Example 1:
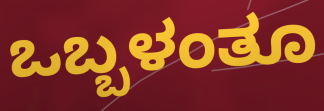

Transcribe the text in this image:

ಒಬ್ಬಳಂತೂ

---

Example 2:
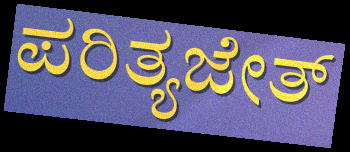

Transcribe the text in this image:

ಪರಿತ್ಯಜೇತ್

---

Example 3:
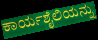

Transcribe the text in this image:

ಕಾರ್ಯಶೈಲಿಯನ್ನು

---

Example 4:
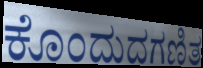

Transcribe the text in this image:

ಕೊಂದುದಗಣಿತ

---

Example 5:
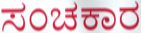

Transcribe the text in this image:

ಸಂಚಕಾರ